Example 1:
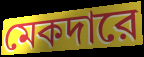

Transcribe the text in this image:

মেকদারে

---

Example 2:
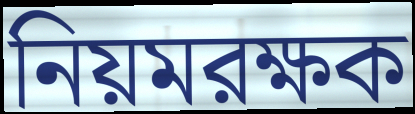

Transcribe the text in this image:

নিয়মরক্ষক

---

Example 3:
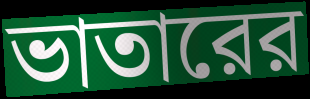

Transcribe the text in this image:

ভাতারের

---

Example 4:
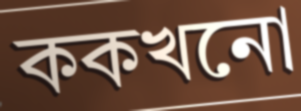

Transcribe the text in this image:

ককখনো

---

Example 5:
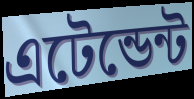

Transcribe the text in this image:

এটেন্ডেন্ট